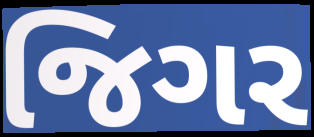
જિગર